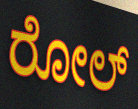
ರೋಲ್